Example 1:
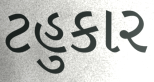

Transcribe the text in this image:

ટહુકાર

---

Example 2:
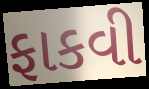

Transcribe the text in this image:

ફાકવી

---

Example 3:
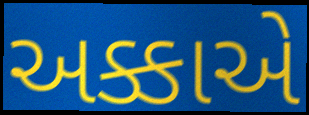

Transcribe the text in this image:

અક્કાએ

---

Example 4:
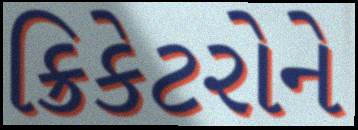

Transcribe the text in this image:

ક્રિકેટરોને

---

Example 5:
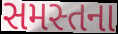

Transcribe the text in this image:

સમસ્તના